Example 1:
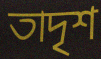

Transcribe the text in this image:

তাদৃশ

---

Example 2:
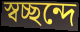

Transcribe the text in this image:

স্বচ্ছন্দে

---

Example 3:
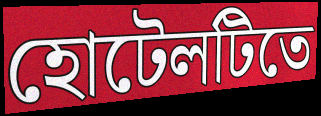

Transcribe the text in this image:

হোটেলটিতে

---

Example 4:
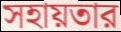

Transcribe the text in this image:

সহায়তার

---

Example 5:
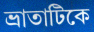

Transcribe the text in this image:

ভ্রাতাটিকে